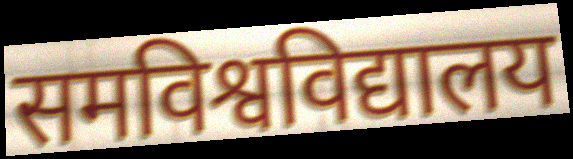
समविश्वविद्यालय